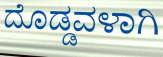
ದೊಡ್ಡವಳಾಗಿ